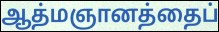
ஆத்மஞானத்தைப்